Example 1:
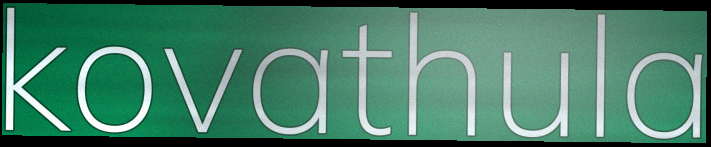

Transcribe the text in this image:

kovathula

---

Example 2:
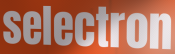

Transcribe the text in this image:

selectron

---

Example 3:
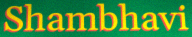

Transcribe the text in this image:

Shambhavi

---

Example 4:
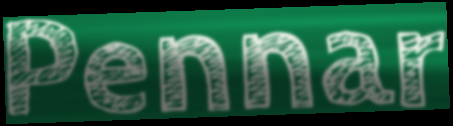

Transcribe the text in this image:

Pennar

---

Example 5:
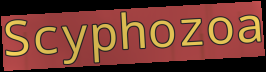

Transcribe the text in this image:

Scyphozoa